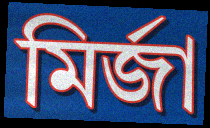
মির্জা